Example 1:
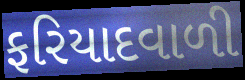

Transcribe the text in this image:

ફરિયાદવાળી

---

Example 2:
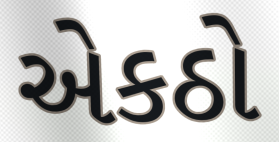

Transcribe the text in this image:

એકઠો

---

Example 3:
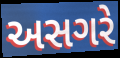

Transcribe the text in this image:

અસગરે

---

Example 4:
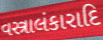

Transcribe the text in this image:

વસ્ત્રાલંકારાદિ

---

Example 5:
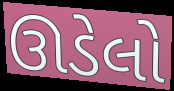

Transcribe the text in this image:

ઊડેલો